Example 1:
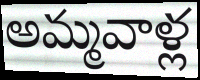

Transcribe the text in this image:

అమ్మవాళ్ల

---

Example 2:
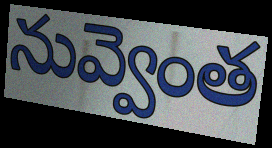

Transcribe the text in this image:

నువ్వెంత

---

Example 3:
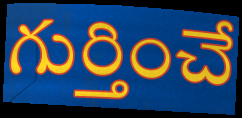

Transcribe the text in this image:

గుర్తించే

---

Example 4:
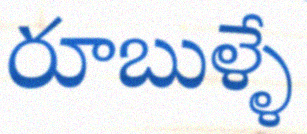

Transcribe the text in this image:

రూబుళ్ళే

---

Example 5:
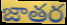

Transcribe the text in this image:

జాతర